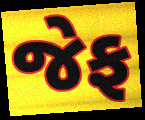
જેફ